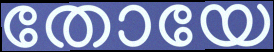
തോയേ